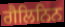
ਗੈਲਿਨਿਨ